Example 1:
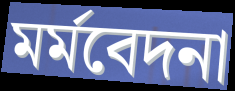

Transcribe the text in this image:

মর্মবেদনা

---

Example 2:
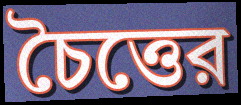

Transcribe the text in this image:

চৈত্তের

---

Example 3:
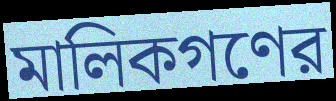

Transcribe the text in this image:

মালিকগণের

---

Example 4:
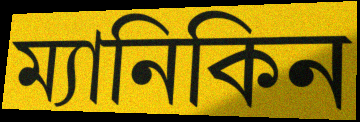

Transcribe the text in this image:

ম্যানিকিন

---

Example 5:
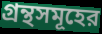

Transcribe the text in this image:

গ্রন্থসমূহের